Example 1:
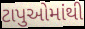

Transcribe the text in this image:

ટાપુઓમાંથી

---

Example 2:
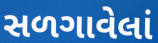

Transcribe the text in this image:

સળગાવેલાં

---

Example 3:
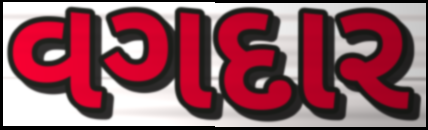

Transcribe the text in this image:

વગદાર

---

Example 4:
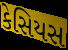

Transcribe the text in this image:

કેસિયસ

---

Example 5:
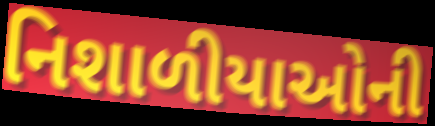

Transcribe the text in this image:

નિશાળીયાઓની